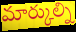
మార్కుల్ని